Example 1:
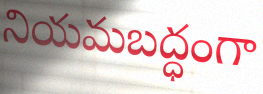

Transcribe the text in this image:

నియమబద్ధంగా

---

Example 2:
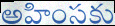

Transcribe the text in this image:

అహింసకు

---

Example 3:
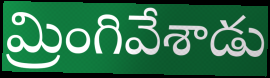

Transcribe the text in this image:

మ్రింగివేశాడు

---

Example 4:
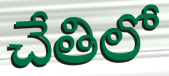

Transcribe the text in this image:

చేతిలో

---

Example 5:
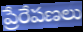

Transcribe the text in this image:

ప్రేరేపణలు